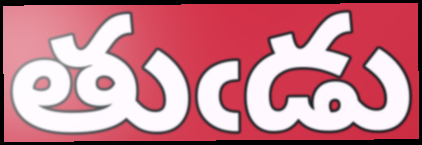
తుఁడు